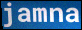
jamna